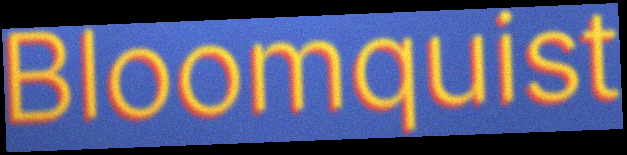
Bloomquist